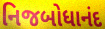
નિજબોધાનંદ